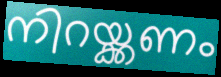
നിറയ്ക്കണം